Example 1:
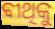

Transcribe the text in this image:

ବୀଥିକୁ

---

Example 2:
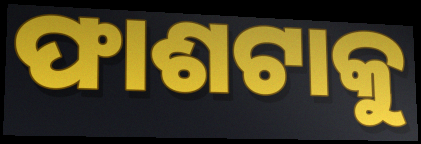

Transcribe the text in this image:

ଫାଶଟାକୁ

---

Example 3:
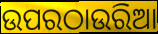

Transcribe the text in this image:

ଉପରଠାଉରିଆ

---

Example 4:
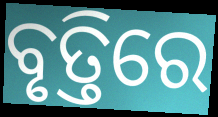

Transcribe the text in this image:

ବୃତ୍ତିରେ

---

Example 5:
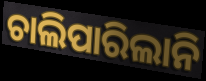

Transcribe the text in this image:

ଚାଲିପାରିଲାନି